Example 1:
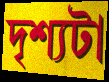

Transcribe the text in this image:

দৃশ্যটা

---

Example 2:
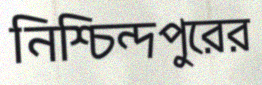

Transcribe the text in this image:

নিশ্চিন্দপুরের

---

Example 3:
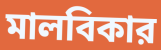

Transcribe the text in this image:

মালবিকার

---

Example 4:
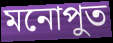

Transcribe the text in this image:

মনোপুত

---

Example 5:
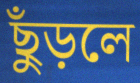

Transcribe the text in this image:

ছুঁড়লে